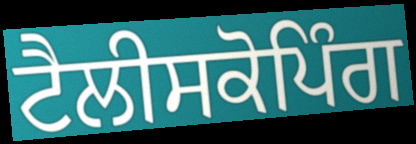
ਟੈਲੀਸਕੋਪਿੰਗ